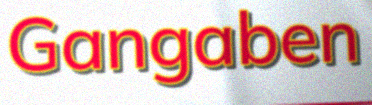
Gangaben